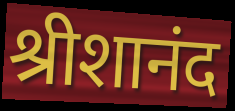
श्रीशानंद